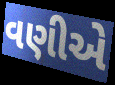
વણીએ